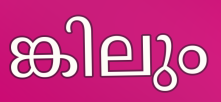
ങ്കിലും